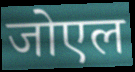
जोएल